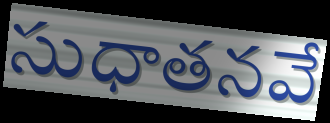
సుధాతనవే